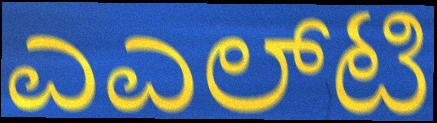
ಎಎಲ್‌ಟಿ